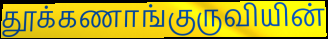
தூக்கணாங்குருவியின்